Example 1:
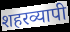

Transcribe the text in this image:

शहरव्यापी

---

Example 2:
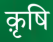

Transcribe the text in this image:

क़ृषि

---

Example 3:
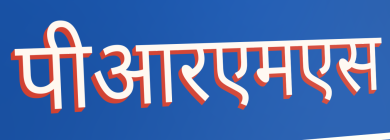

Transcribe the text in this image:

पीआरएमएस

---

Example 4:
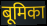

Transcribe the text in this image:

बूमिका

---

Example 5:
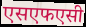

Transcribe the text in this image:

एसएफएसी